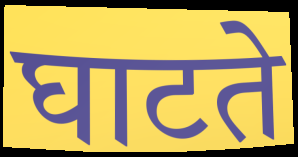
घाटते